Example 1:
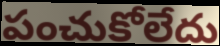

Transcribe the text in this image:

పంచుకోలేదు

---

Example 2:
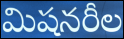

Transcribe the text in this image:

మిషనరీల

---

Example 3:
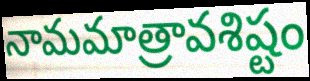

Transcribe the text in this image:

నామమాత్రావశిష్టం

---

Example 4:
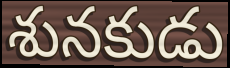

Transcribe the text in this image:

శునకుడు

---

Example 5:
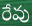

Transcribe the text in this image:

రేవు